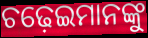
ଚଢ଼େଇମାନଙ୍କୁ